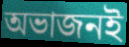
অভাজনই